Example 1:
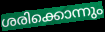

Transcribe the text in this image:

ശരിക്കൊന്നും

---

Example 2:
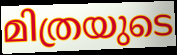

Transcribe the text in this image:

മിത്രയുടെ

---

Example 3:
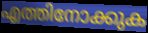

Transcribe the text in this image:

എത്തിനോക്കുക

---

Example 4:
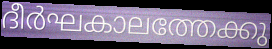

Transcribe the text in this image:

ദീർഘകാലത്തേക്കു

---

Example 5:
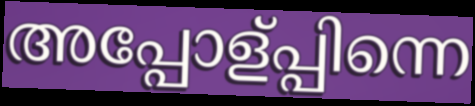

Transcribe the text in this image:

അപ്പോള്പ്പിന്നെ